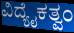
ವಿದ್ಯೈಕತ್ವಂ